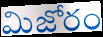
మిజోరం